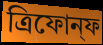
ত্রিফোন্ফ